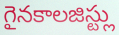
గైనకాలజిస్ట్లు